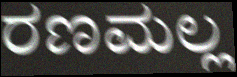
ರಣಮಲ್ಲ